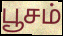
பூசம்